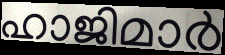
ഹാജിമാർ